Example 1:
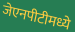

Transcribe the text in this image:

जेएनपीटीमध्ये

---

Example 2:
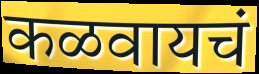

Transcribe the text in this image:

कळवायचं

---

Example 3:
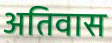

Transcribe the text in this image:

अतिवास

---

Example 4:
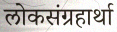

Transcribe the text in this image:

लोकसंग्रहार्था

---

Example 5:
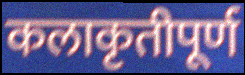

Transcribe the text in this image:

कलाकृतीपूर्ण